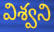
విశ్వని